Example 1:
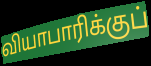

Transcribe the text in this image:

வியாபாரிக்குப்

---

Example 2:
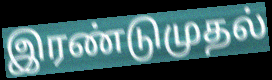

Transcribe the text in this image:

இரண்டுமுதல்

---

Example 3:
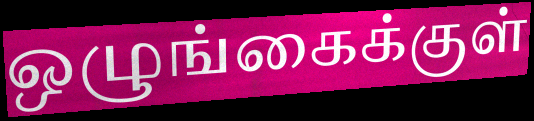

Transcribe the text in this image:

ஒழுங்கைக்குள்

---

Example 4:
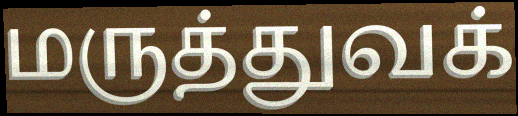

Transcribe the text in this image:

மருத்துவக்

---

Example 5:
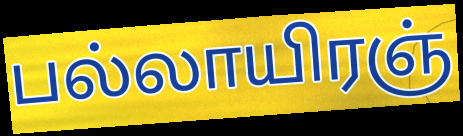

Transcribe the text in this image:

பல்லாயிரஞ்